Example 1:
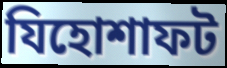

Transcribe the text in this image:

যিহোশাফট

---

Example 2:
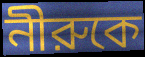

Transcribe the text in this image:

নীরুকে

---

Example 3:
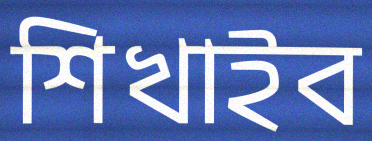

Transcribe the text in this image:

শিখাইব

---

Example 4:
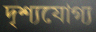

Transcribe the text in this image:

দৃশ্যযোগ্য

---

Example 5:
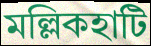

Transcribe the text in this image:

মল্লিকহাটি